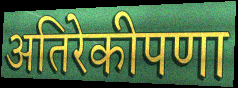
अतिरेकीपणा